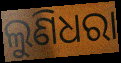
ଲୁଣିଧରା